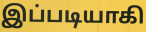
இப்படியாகி